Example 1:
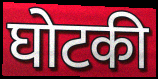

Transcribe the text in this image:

घोटकी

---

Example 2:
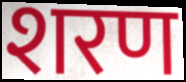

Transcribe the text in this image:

शरण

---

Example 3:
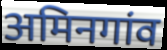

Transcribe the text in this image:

अमिनगांव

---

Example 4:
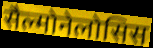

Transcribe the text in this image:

सैल्मोनेलोसिस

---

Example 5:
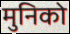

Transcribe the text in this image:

मुनिको